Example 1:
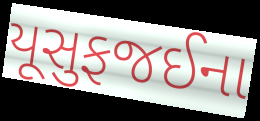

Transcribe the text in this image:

યૂસુફજઈના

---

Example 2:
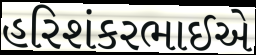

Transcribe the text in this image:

હરિશંકરભાઈએ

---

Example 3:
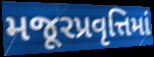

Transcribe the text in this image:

મજૂરપ્રવૃત્તિમાં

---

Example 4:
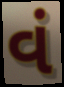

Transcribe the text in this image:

વં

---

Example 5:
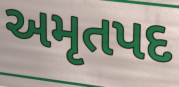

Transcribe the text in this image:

અમૃતપદ